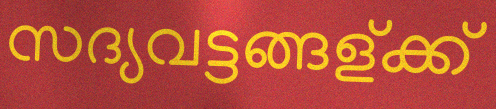
സദ്യവട്ടങ്ങള്ക്ക്